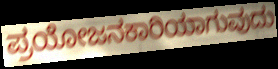
ಪ್ರಯೋಜನಕಾರಿಯಾಗುವುದು